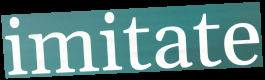
imitate